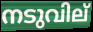
നടുവില്